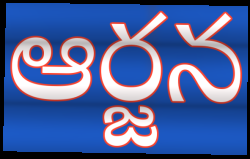
ఆర్జన